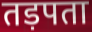
तड़पता